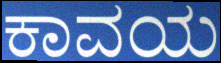
ಕಾವಯ